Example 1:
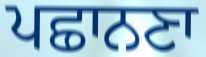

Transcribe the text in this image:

ਪਛਾਨਣਾ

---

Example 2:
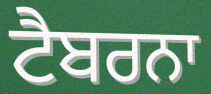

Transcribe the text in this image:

ਟੈਬਰਨਾ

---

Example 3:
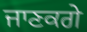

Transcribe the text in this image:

ਜਾਣਕਗੇ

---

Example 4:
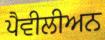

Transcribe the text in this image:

ਪੈਵੀਲੀਅਨ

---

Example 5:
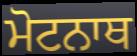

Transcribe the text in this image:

ਮੋਟਨਾਥ